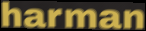
harman